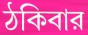
ঠকিবার